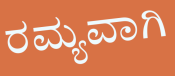
ರಮ್ಯವಾಗಿ